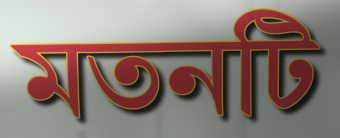
মতনটি